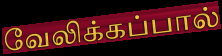
வேலிக்கப்பால்